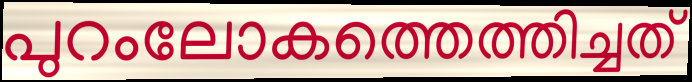
പുറംലോകത്തെത്തിച്ചത്